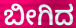
ಬೀಗಿದ